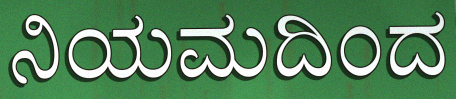
ನಿಯಮದಿಂದ